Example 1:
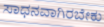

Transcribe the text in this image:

ಸಾಧನವಾಗಿರಬೇಕು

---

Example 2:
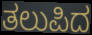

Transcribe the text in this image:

ತಲುಪಿದ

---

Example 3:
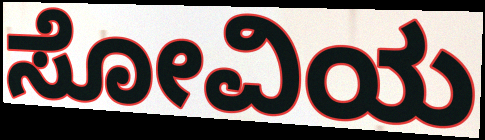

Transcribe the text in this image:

ಸೋವಿಯ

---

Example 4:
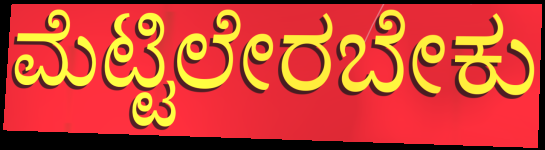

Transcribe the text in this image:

ಮೆಟ್ಟಿಲೇರಬೇಕು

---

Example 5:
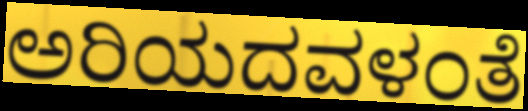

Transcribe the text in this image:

ಅರಿಯದವಳಂತೆ